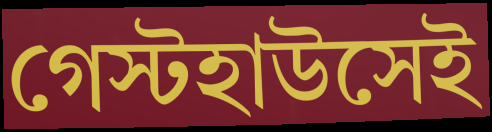
গেস্টহাউসেই